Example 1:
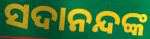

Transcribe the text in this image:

ସଦାନନ୍ଦଙ୍କ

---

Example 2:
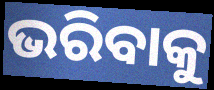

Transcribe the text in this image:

ଭରିବାକୁ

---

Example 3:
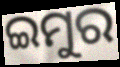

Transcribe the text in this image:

ଇମୁର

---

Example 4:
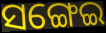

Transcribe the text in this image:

ସଙ୍ଗେଇ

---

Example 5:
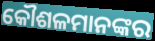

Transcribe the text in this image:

କୌଶଳମାନଙ୍କର